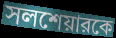
সলশেয়ারকে